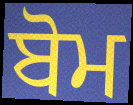
ਬੋਮ